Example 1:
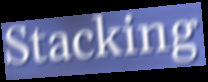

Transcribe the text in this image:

Stacking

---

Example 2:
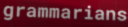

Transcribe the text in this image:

grammarians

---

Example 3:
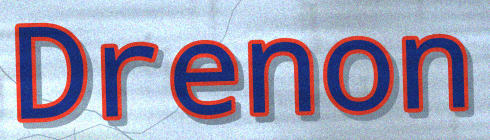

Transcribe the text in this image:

Drenon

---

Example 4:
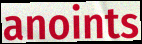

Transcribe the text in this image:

anoints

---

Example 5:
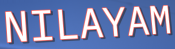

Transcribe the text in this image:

NILAYAM